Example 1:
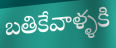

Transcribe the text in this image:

బతికేవాళ్ళకి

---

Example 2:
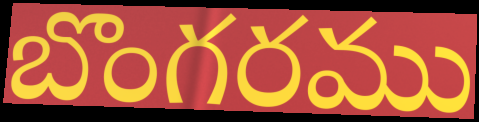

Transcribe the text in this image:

బొంగరము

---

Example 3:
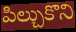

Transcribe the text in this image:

పిల్చుకొని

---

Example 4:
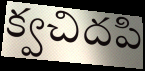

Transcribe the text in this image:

క్వచిదపి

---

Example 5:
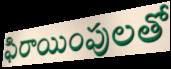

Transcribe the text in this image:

ఫిరాయింపులతో